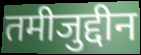
तमीजुद्दीन